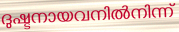
ദുഷ്ടനായവനിൽനിന്ന്